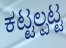
ಕಟ್ಟಲ್ಪಟ್ಟ